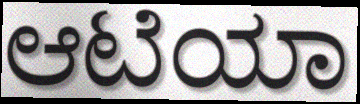
ಆಟೆಯಾ